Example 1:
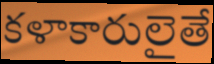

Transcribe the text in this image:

కళాకారులైతే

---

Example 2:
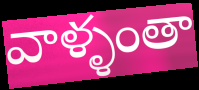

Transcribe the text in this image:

వాళ్ళంతా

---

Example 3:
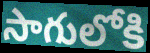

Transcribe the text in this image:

సాగులోకి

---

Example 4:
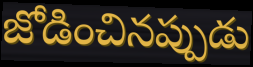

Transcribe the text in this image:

జోడించినప్పుడు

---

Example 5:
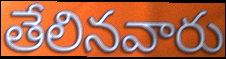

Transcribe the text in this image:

తేలినవారు